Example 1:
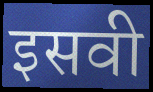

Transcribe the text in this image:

इसवी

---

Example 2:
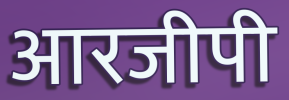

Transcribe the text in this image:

आरजीपी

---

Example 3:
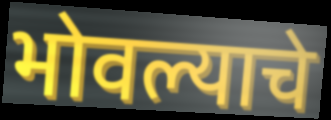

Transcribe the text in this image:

भोवल्याचे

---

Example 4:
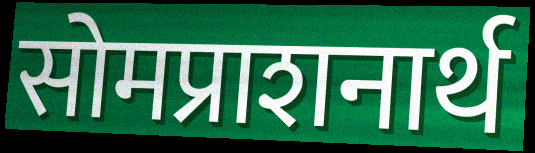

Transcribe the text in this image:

सोमप्राशनार्थ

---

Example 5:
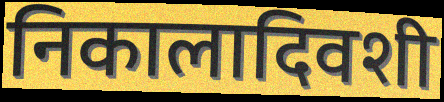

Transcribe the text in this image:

निकालादिवशी